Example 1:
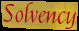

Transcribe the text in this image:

Solvency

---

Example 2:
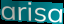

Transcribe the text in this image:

arisa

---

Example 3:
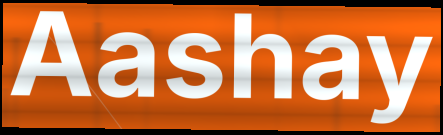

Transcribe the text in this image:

Aashay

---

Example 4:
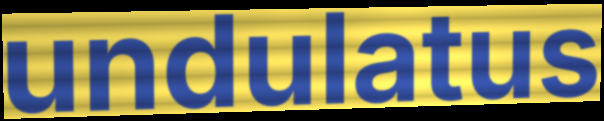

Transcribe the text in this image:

undulatus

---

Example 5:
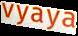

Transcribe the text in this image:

vyaya